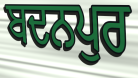
ਬਦਨਪੁਰ